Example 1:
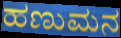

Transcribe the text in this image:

ಹಣುಮನ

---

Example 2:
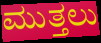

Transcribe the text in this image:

ಮುತ್ತಲು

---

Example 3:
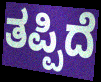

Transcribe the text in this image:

ತಪ್ಪಿದೆ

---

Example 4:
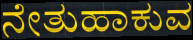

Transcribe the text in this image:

ನೇತುಹಾಕುವ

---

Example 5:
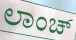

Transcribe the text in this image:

ಲಾಂಚ್